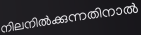
നിലനിൽക്കുന്നതിനാൽ